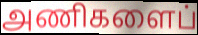
அணிகளைப்